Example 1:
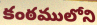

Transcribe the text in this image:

కంఠములోని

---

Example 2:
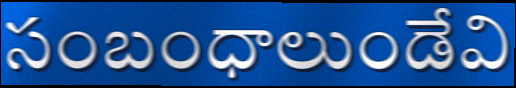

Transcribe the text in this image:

సంబంధాలుండేవి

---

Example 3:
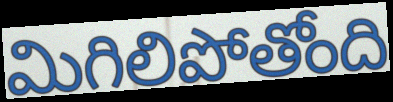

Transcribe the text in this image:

మిగిలిపోతోంది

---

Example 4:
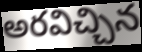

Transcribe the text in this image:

అరవిచ్చిన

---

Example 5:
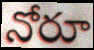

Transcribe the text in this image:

నోరూ